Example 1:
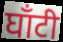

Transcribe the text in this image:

घाँटी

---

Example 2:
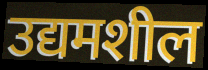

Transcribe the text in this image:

उद्यमशील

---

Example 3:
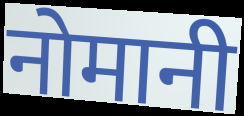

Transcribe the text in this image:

नोमानी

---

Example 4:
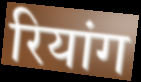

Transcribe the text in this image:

रियांग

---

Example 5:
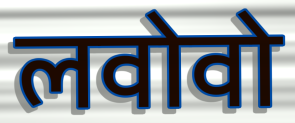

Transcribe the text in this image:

लवोवो